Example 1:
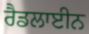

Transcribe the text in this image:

ਰੈਡਲਾਈਨ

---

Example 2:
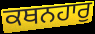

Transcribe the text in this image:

ਕਥਨਹਾਰੁ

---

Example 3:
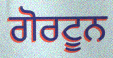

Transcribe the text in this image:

ਗੋਰਟੂਨ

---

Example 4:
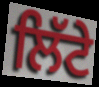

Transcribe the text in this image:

ਲਿੱਟੇ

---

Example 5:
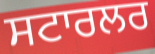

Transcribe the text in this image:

ਸਟਾਰਲਰ